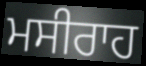
ਮਸੀਰਾਹ